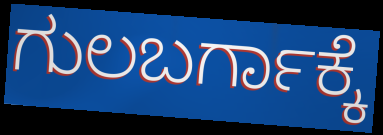
ಗುಲಬರ್ಗಾಕ್ಕೆ